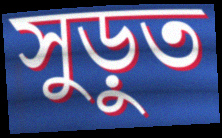
সুড়ুত